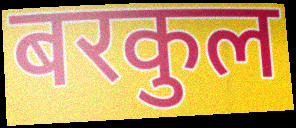
बरकुल